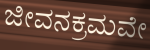
ಜೀವನಕ್ರಮವೇ